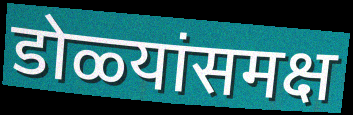
डोळ्यांसमक्ष